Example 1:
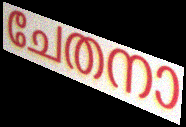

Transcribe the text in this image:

ചേതനാ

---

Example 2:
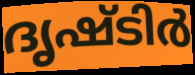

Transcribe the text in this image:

ദൃഷ്ടിർ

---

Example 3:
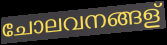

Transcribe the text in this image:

ചോലവനങ്ങള്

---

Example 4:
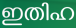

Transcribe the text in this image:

ഇതിഹ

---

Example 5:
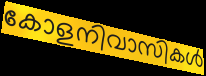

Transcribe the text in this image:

കോളനിവാസികൾ